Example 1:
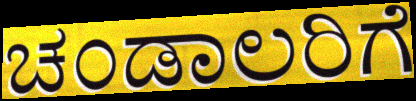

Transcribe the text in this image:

ಚಂಡಾಲರಿಗೆ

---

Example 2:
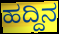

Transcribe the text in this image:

ಹದ್ದಿನ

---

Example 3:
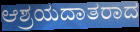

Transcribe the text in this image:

ಆಶ್ರಯದಾತರಾದ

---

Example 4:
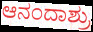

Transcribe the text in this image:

ಆನಂದಾಶ್ರು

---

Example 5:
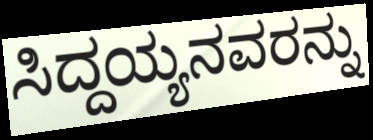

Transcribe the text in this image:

ಸಿದ್ದಯ್ಯನವರನ್ನು